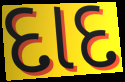
દાદ